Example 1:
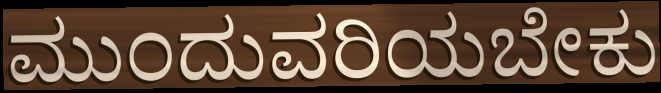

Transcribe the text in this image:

ಮುಂದುವರಿಯಬೇಕು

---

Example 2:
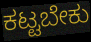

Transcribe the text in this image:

ಕಟ್ಟಬೇಕು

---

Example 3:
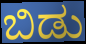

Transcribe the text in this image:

ಬಿಡು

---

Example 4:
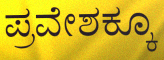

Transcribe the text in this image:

ಪ್ರವೇಶಕ್ಕೂ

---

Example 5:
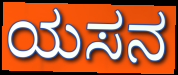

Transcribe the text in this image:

ಯಸನ